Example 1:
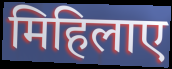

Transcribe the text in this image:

मिहिलाए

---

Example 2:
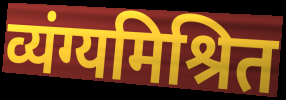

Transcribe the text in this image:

व्यंग्यमिश्रित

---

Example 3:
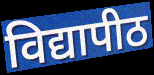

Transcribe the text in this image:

विद्यापीठ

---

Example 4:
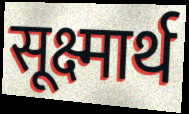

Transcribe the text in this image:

सूक्ष्मार्थ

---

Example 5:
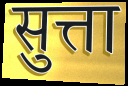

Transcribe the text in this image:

सुत्ता